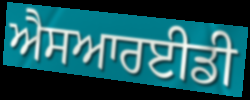
ਐਸਆਰਈਡੀ